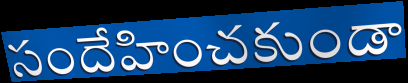
సందేహించకుండా